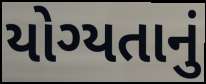
યોગ્યતાનું